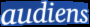
audiens